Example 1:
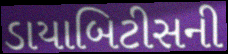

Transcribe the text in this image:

ડાયાબિટીસની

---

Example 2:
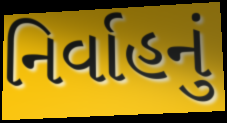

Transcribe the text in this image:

નિર્વાહનું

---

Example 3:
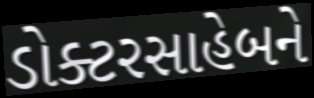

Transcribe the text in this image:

ડોક્ટરસાહેબને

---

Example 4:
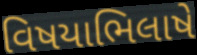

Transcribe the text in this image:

વિષયાભિલાષે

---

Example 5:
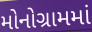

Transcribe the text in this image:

મોનોગ્રામમાં